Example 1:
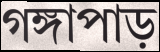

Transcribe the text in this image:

গঙ্গাপাড়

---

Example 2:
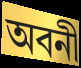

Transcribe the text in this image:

অবনী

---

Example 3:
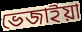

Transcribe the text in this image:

ভেজাইয়া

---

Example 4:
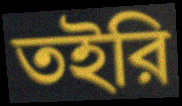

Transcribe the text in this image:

তইরি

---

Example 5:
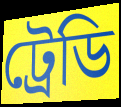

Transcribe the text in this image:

ট্রেডি